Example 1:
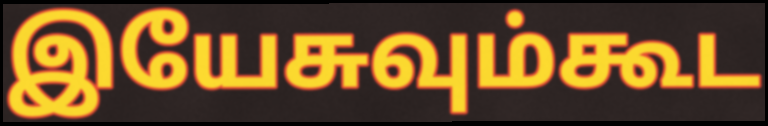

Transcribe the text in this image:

இயேசுவும்கூட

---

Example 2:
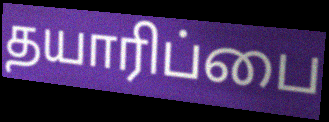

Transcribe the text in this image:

தயாரிப்பை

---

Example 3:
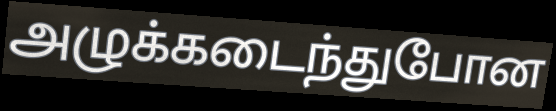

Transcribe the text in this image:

அழுக்கடைந்துபோன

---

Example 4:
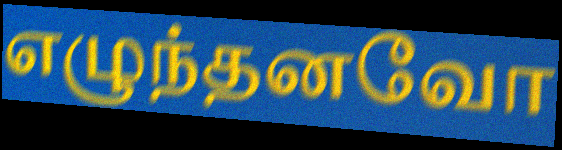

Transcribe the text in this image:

எழுந்தனவோ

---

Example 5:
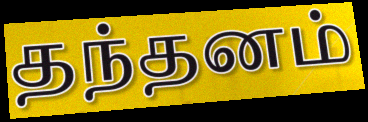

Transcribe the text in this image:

தந்தனம்